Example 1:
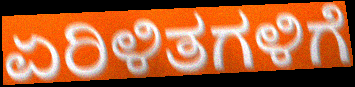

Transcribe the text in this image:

ಏರಿಳಿತಗಳಿಗೆ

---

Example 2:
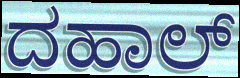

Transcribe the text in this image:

ದಹಾಲ್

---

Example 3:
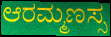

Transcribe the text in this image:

ಆರಮ್ಮಣಸ್ಸ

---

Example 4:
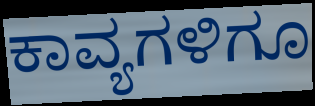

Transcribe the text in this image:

ಕಾವ್ಯಗಳಿಗೂ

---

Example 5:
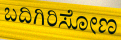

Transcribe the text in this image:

ಬದಿಗಿರಿಸೋಣ